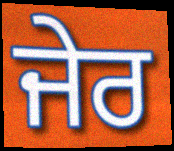
ਜੇਰ